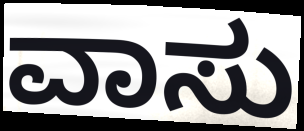
ವಾಸು